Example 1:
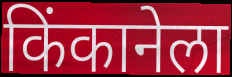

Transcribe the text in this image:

किंकानेला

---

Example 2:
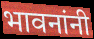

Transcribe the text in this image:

भावनांनी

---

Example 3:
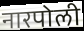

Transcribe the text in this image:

नारपोली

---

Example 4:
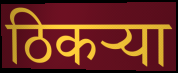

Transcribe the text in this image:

ठिकर्‍या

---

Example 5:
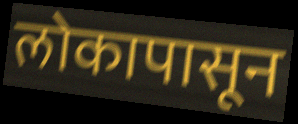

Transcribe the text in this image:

लोकापासून